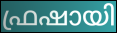
ഫ്രഷായി